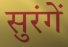
सुरंगें